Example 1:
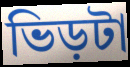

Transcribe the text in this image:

ভিড়টা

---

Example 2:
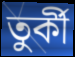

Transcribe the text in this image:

তুর্কী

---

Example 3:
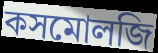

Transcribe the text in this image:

কসমোলজি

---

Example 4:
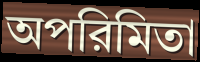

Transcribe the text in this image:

অপরিমিতা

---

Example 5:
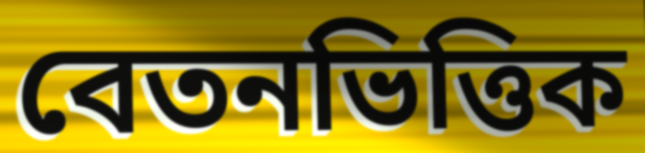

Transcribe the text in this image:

বেতনভিত্তিক